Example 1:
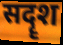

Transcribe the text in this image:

सदॄश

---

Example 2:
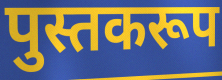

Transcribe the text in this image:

पुस्तकरूप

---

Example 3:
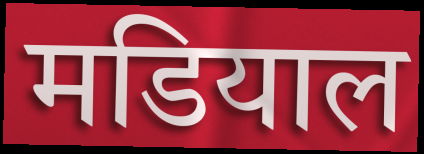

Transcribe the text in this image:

मडियाल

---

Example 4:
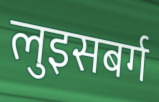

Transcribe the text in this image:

लुइसबर्ग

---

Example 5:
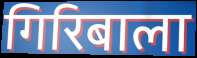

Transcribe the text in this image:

गिरिबाला